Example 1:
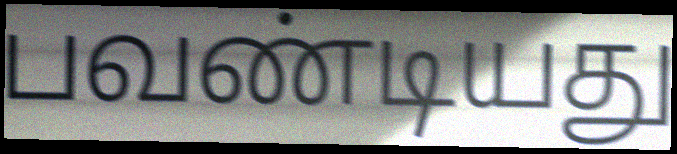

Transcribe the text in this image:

பவண்டியது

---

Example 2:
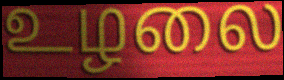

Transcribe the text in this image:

உழலை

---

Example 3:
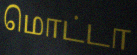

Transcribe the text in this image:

மொட்டா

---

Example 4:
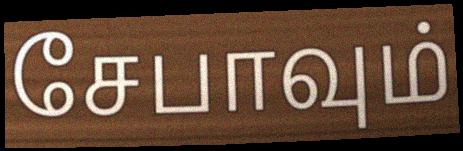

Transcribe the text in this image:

சேபாவும்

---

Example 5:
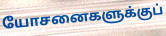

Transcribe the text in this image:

யோசனைகளுக்குப்